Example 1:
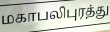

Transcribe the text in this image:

மகாபலிபுரத்து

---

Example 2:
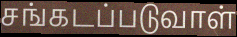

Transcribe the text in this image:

சங்கடப்படுவாள்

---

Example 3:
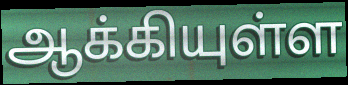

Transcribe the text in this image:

ஆக்கியுள்ள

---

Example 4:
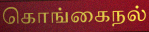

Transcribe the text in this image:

கொங்கைநல்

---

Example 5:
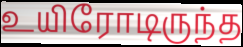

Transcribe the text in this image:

உயிரோடிருந்த